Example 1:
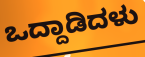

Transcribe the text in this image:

ಒದ್ದಾಡಿದಳು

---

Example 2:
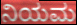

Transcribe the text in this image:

ನಿಯಮ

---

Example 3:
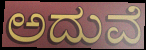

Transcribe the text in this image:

ಅದುವೆ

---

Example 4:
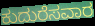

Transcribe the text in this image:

ಕುದುರೆಸವಾರ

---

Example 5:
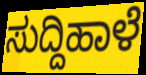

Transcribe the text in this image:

ಸುದ್ದಿಹಾಳೆ